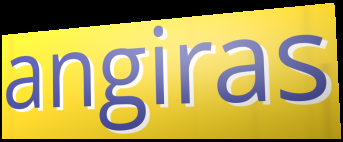
angiras